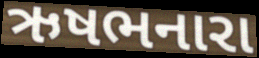
ઋષભનારા